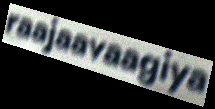
raajaavaagiya